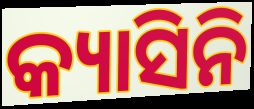
କ୍ୟାସିନି